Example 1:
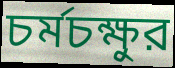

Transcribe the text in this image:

চর্মচক্ষুর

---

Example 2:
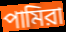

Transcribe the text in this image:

পামিরা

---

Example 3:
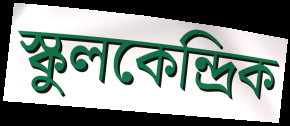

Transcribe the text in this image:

স্কুলকেন্দ্রিক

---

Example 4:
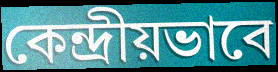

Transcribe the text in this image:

কেন্দ্রীয়ভাবে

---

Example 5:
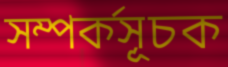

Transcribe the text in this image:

সম্পর্কসূচক